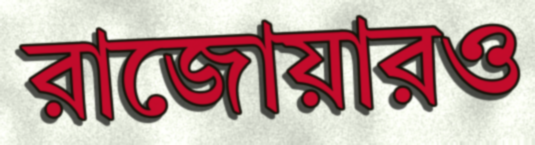
রাজোয়ারও